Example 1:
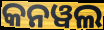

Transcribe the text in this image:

କନୱଲ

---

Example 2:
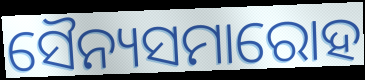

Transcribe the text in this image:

ସୈନ୍ୟସମାରୋହ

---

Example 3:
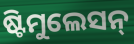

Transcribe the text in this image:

ଷ୍ଟିମୁଲେସନ୍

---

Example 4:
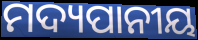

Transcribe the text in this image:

ମଦ୍ୟପାନୀୟ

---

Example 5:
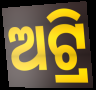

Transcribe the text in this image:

ଅଟ୍ରି